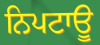
ਨਿਪਟਾਊ